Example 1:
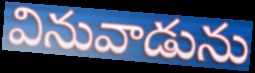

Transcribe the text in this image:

వినువాడును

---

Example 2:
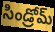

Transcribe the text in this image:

సిండ్రోమ్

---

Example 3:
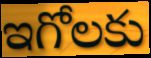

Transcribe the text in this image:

ఇగోలకు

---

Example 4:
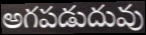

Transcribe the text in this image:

అగపడుదువు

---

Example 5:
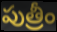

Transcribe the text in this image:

పుత్రీం